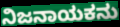
ನಿಜನಾಯಕನು